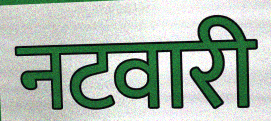
नटवारी